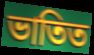
ভাতিত